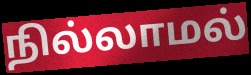
நில்லாமல்